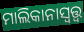
ମାଲିକାନାସ୍ୱତ୍ତ୍ୱ